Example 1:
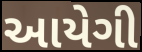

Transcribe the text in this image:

આયેગી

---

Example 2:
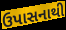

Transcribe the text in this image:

ઉપાસનાથી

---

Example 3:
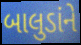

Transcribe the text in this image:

બાલુડાંને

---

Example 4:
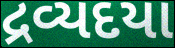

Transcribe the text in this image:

દ્રવ્યદયા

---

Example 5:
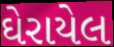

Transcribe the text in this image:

ઘેરાયેલ